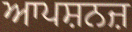
ਆਪਸ਼ਨਜ਼